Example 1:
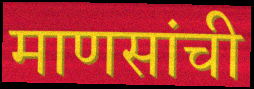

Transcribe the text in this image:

माणसांची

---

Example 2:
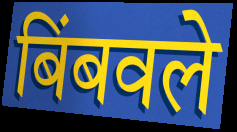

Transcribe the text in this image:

बिंबवले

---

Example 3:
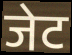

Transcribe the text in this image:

जेट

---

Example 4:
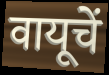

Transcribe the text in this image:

वायूचें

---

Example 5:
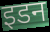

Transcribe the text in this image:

इडन